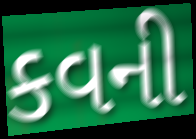
કવની